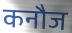
कनौज